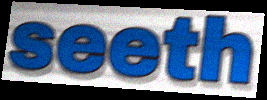
seeth